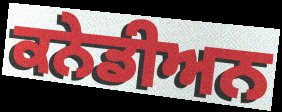
ਕਨੇਡੀਅਨ